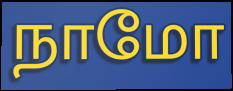
நாமோ